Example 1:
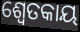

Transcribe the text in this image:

ଶ୍ବେତକାୟ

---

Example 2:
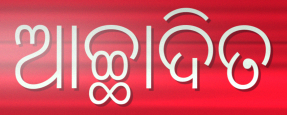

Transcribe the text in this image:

ଆଚ୍ଛାଦିତ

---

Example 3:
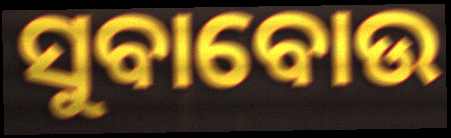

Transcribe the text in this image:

ସୁବାବୋଉ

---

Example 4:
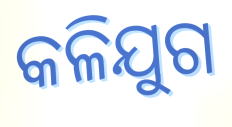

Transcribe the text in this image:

କଳିଯୁଗ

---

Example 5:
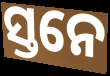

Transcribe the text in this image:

ସ୍ତନେ